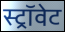
स्ट्रॉवेट